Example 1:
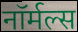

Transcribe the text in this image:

नॉर्मल्स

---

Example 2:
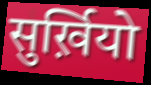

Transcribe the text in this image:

सुर्ख़ियो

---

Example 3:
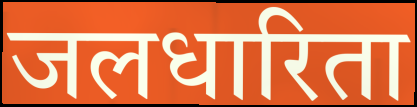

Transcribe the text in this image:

जलधारिता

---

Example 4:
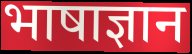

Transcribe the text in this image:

भाषाज्ञान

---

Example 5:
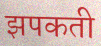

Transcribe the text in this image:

झपकती